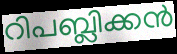
റിപബ്ലിക്കൻ